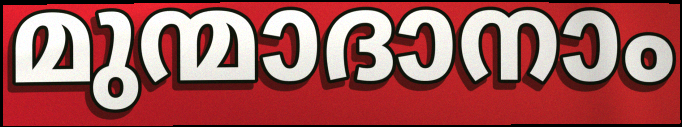
മുന്മാദാനാം